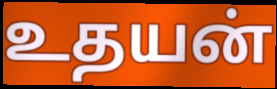
உதயன்